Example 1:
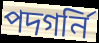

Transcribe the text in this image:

পদগর্নি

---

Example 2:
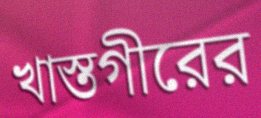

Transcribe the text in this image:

খাস্তগীরের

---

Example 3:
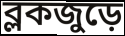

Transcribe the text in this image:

ব্লকজুড়ে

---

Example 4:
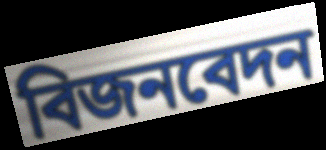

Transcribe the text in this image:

বিজনবেদন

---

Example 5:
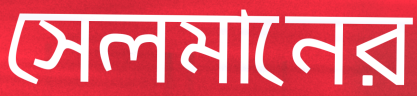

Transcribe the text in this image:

সেলমানের